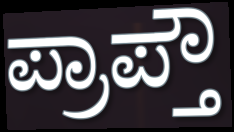
ಪ್ರಾಪ್ತೌ